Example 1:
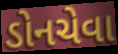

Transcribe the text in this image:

ડોનચેવા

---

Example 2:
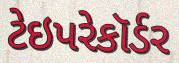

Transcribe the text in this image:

ટેઇપરેકૉર્ડર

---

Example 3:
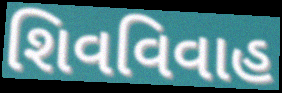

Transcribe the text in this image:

શિવવિવાહ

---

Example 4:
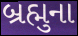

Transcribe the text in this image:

બ્રહ્મુના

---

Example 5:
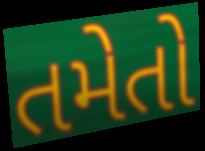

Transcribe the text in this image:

તમેતો